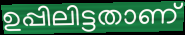
ഉപ്പിലിട്ടതാണ്